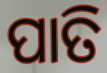
ପାତି